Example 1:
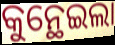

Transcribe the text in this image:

କୁନ୍ଥେଇଲା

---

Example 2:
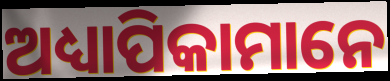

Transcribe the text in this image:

ଅଧ୍ୟାପିକାମାନେ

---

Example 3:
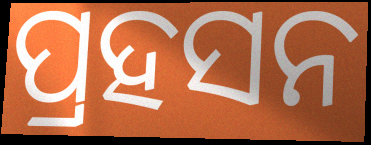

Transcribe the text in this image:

ପ୍ରହସନ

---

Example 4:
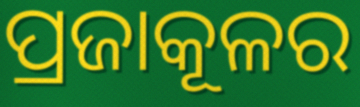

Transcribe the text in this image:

ପ୍ରଜାକୂଳର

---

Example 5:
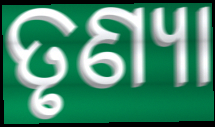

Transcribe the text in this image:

ତୃଣ୍ୟା